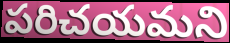
పరిచయమని